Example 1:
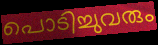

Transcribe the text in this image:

പൊടിച്ചുവരും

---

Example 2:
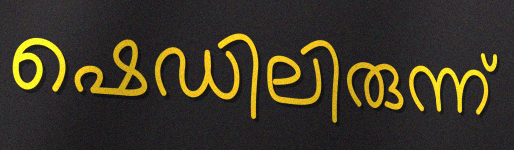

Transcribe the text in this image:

ഷെഡിലിരുന്ന്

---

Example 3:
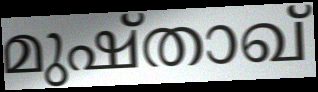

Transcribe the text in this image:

മുഷ്താഖ്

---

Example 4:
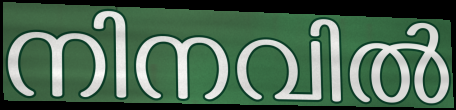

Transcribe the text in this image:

നിനവിൽ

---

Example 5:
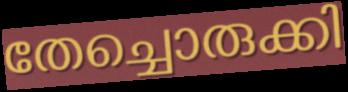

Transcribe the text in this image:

തേച്ചൊരുക്കി